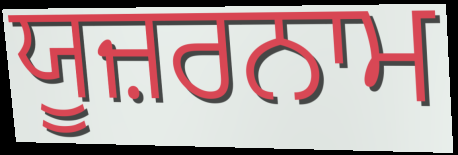
ਯੂਜ਼ਰਨਾਮ